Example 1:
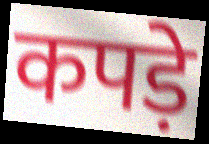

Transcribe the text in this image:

कपड़े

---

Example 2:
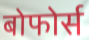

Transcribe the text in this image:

बोफोर्स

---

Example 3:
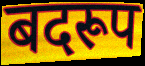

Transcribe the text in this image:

बदरूप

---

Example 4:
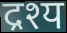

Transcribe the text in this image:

द्रश्य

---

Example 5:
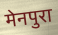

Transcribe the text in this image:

मेनपुरा